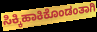
ಸಿಕ್ಕಿಹಾಕಿಕೊಂಡಂತಾಗಿ